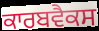
ਕਾਰਬਵੈਕਸ